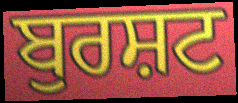
ਬੁਰਸ਼ਟ